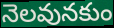
నెలవునకుం